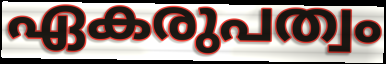
ഏകരുപത്വം